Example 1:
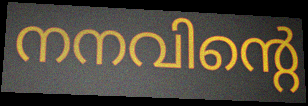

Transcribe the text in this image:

നനവിന്റെ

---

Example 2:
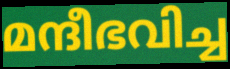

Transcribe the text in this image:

മന്ദീഭവിച്ച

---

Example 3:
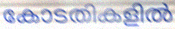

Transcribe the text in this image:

കോടതികളിൽ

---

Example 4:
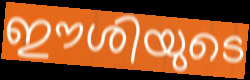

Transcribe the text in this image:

ഈശിയുടെ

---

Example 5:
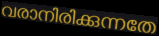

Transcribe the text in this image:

വരാനിരിക്കുന്നതേ